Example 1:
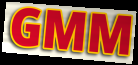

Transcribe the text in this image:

GMM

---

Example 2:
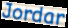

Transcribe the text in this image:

Jordar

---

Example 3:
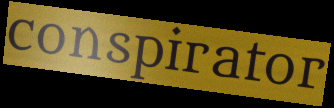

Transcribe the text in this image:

conspirator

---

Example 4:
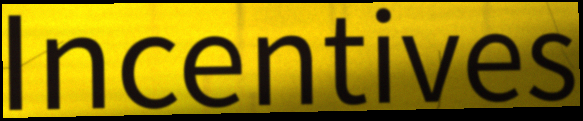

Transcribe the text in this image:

Incentives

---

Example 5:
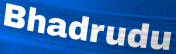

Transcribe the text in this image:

Bhadrudu